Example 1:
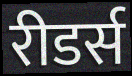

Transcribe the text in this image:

रीडर्स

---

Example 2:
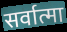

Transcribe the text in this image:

सर्वात्मा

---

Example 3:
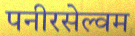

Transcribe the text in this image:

पनीरसेल्वम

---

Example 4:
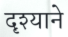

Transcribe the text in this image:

दृश्याने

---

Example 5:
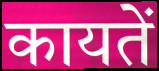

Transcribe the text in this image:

कायतें